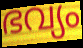
ഭവ്യം